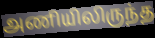
அணியிலிருந்த